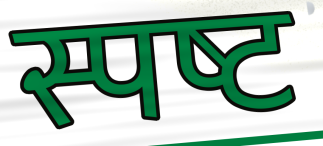
स्‍पष्‍ट